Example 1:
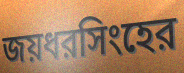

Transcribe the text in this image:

জয়ধরসিংহের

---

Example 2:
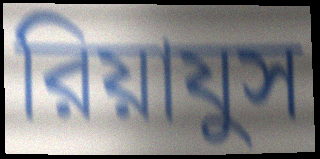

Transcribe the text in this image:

রিয়াযুস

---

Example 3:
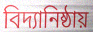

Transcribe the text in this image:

বিদ্যানিষ্ঠায়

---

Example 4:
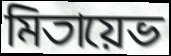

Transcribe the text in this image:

মিতায়েভ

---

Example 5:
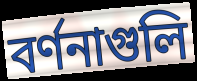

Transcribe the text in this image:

বর্ণনাগুলি